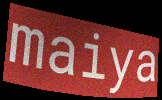
maiya